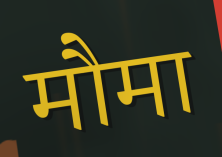
मौमा